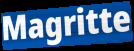
Magritte